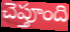
చెప్తూంది